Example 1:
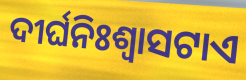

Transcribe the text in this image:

ଦୀର୍ଘନିଃଶ୍ୱାସଟାଏ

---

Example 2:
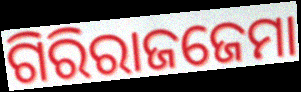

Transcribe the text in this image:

ଗିରିରାଜଜେମା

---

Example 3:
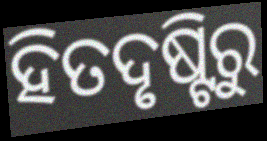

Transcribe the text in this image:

ହିତଦୃଷ୍ଟିରୁ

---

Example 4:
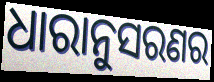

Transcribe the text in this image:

ଧାରାନୁସରଣର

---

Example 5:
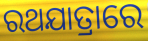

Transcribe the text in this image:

ରଥଯାତ୍ରାରେ